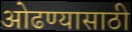
ओढण्यासाठी